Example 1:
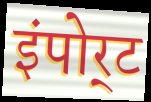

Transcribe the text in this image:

इंपोर्ट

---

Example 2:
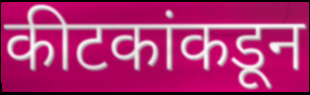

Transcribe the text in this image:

कीटकांकडून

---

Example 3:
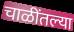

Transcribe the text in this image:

चाळींतल्या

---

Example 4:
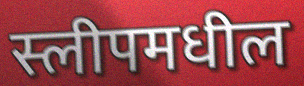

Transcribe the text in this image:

स्लीपमधील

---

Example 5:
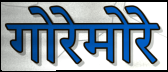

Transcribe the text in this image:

गोरेमोरे